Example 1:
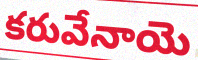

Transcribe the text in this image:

కరువేనాయె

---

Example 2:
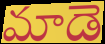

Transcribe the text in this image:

మాడె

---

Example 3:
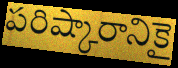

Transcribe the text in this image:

పరిష్కారానికై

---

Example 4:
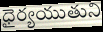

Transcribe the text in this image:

ధైర్యయుతుని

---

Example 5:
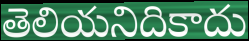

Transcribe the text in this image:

తెలియనిదికాదు